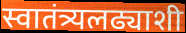
स्वातंत्र्यलढ्याशी